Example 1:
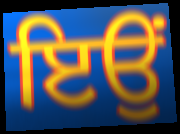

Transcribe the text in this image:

ਇਉਂ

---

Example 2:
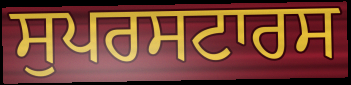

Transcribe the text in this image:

ਸੁਪਰਸਟਾਰਸ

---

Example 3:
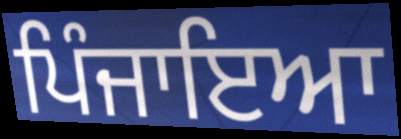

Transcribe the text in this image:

ਪਿੰਜਾਇਆ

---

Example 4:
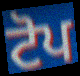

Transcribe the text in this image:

ਟੋਪ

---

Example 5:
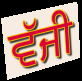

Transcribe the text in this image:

ਵੱਜੀ